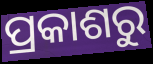
ପ୍ରକାଶରୁ